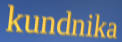
kundnika